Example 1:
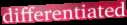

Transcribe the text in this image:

differentiated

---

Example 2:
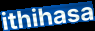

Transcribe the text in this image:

ithihasa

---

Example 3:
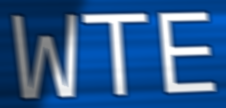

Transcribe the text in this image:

WTE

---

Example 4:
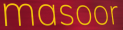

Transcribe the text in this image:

masoor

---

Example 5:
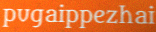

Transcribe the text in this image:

pugaippezhai